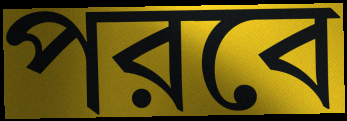
পরবে